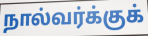
நால்வர்க்குக்